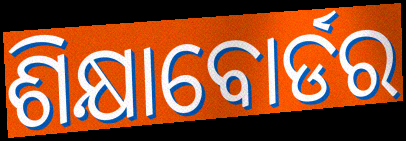
ଶିକ୍ଷାବୋର୍ଡର